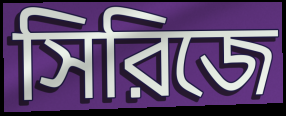
সিরিজে